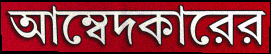
আম্বেদকারের